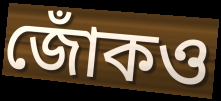
জোঁকও